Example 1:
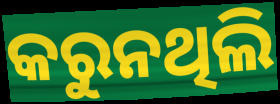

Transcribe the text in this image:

କରୁନଥିଲି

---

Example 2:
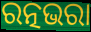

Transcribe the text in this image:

ରତ୍ନଭରା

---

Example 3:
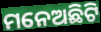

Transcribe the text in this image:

ମନେଅଛିଟି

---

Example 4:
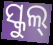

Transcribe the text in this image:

ସ୍କୁଲ୍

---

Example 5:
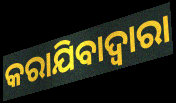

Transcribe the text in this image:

କରାଯିବାଦ୍ୱାରା